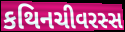
કથિનચીવરસ્સ